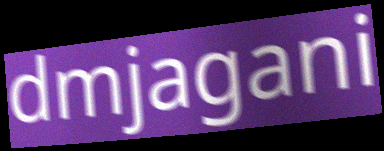
dmjagani